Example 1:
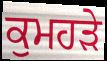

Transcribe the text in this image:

ਕੁਮਹੜੇ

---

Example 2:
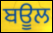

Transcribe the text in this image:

ਬਊਲ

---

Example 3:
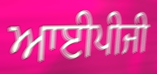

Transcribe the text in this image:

ਆਈਪੀਜੀ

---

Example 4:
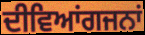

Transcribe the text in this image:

ਦੀਵਿਆਂਗਜਨਾਂ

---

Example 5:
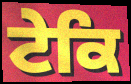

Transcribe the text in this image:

ਟੇਕਿ